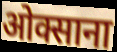
ओक्साना